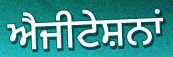
ਐਜੀਟੇਸ਼ਨਾਂ